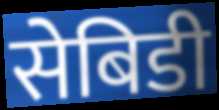
सेबिडी